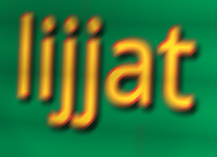
lijjat